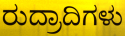
ರುದ್ರಾದಿಗಳು